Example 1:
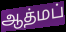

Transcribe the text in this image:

ஆத்மப்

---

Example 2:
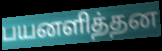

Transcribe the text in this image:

பயனளித்தன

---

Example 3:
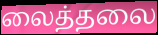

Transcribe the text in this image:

லைத்தலை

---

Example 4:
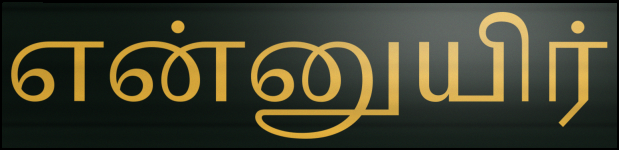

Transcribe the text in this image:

என்னுயிர்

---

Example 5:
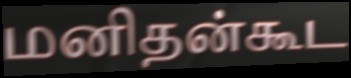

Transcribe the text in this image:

மனிதன்கூட